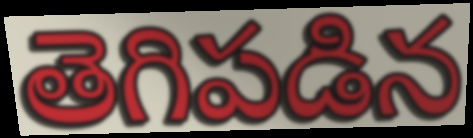
తెగిపడిన